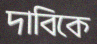
দাবিকে